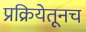
प्रक्रियेतूनच